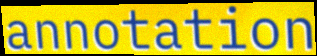
annotation